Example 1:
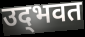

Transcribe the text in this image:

उद्‌भवत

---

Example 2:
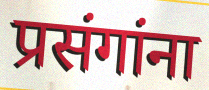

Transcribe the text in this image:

प्रसंगांना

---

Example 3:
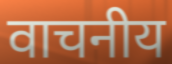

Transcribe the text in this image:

वाचनीय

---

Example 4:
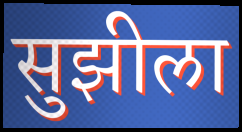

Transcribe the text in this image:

सुझीला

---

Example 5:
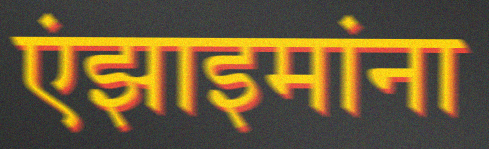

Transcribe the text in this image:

एंझाइमांना